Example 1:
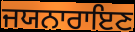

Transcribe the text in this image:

ਜਯਨਾਰਾਇਣ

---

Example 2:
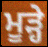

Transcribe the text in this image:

ਮੂੜ੍ਹੇ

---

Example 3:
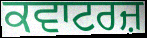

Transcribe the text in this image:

ਕਵਾਟਰਜ਼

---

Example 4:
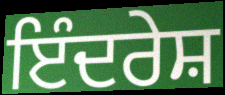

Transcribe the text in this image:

ਇੰਦਰੇਸ਼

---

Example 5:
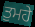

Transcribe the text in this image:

ਤੁਮਹੇ